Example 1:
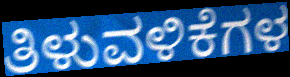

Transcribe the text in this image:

ತಿಳುವಳಿಕೆಗಳ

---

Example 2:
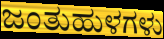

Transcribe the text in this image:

ಜಂತುಹುಳಗಳು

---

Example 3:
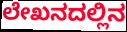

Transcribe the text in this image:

ಲೇಖನದಲ್ಲಿನ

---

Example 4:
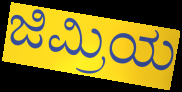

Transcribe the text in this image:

ಜಿಮ್ರಿಯ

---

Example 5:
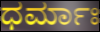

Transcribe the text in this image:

ಧರ್ಮಾಃ